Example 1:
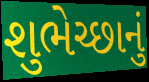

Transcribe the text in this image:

શુભેચ્છાનું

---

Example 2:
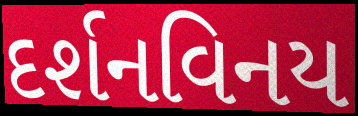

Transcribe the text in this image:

દર્શનવિનય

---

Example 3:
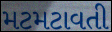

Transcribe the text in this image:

મટમટાવતી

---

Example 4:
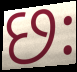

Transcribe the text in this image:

છઃ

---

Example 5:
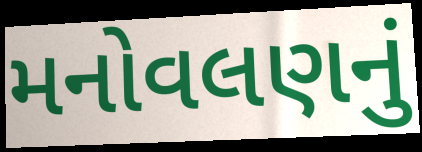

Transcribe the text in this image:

મનોવલણનું